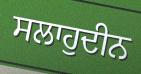
ਸਲਾਹੁਦੀਨ